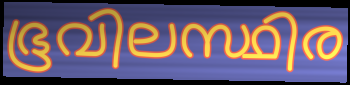
ഭൂവിലസ്ഥിര